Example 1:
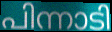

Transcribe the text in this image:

പിന്നാടി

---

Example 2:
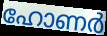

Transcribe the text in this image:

ഹോണർ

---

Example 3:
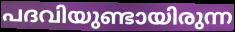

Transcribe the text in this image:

പദവിയുണ്ടായിരുന്ന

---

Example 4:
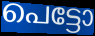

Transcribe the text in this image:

പെട്ടോ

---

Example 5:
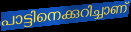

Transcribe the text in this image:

പാട്ടിനെക്കുറിച്ചാണ്